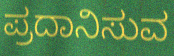
ಪ್ರದಾನಿಸುವ